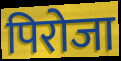
पिरोजा